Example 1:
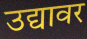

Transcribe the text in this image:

उद्यावर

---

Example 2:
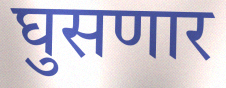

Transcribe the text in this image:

घुसणार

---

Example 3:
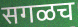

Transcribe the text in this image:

सगळच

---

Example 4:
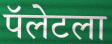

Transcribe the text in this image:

पॅलेटला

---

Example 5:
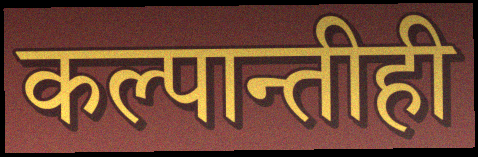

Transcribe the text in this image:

कल्पान्तीही